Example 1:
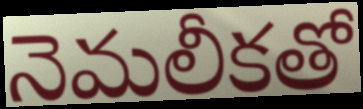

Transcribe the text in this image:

నెమలీకతో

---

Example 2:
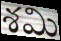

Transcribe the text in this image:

శమి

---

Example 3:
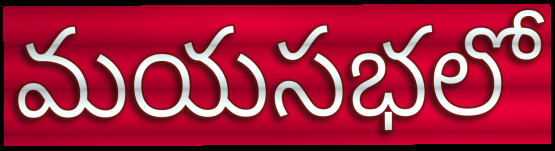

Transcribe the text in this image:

మయసభలో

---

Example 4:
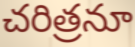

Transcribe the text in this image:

చరిత్రనూ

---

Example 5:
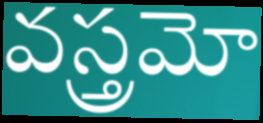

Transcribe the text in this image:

వస్త్రమో